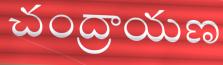
చంద్రాయణ